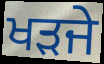
ਖੜਜੇ